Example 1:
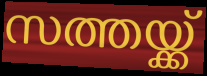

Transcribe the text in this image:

സത്തയ്ക്ക്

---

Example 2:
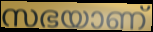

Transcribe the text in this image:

സഭയാണ്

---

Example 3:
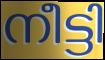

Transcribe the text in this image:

നീട്ടി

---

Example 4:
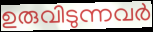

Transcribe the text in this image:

ഉരുവിടുന്നവർ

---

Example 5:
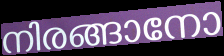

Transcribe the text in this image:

നിരങ്ങാനോ